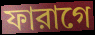
ফারাগে